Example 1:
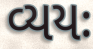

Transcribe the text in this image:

વ્યયઃ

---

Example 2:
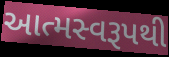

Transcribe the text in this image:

આત્મસ્વરૂપથી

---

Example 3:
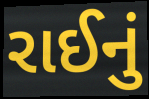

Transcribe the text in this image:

રાઈનું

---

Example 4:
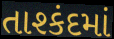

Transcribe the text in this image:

તાશ્કંદમાં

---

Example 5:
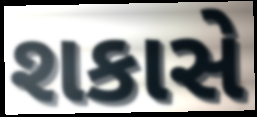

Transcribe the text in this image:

શકાસે